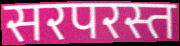
सरपरस्त